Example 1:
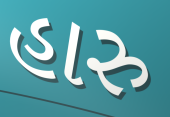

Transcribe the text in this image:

હારુ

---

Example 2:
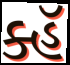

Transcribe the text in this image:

ક્હૅ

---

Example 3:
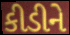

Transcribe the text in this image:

કીડીને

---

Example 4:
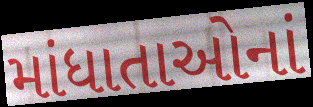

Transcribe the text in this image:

માંધાતાઓનાં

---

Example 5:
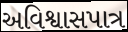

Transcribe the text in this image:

અવિશ્વાસપાત્ર